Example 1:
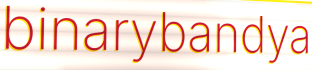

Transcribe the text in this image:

binarybandya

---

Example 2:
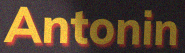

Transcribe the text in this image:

Antonin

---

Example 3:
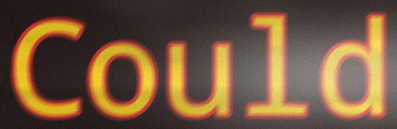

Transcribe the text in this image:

Could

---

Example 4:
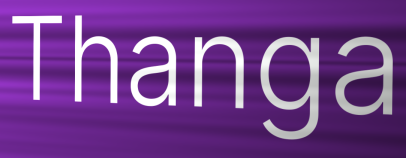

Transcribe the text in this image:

Thanga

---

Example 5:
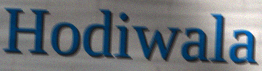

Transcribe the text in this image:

Hodiwala